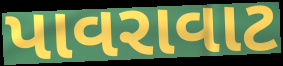
પાવરાવાટ